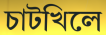
চাটখিলে